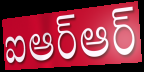
ఐఆర్ఆర్